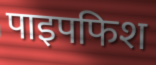
पाइपफिश